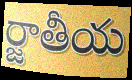
ర్జాతీయ